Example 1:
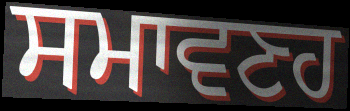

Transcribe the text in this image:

ਸਮਾਵਣਹ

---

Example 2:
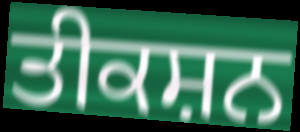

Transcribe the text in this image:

ਤੀਕਸ਼ਨ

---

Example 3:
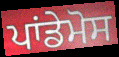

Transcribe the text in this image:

ਪਾਂਡੇਮੋਸ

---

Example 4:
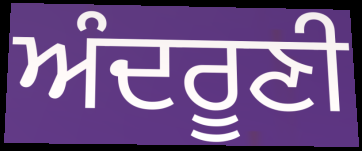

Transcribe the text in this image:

ਅੰਦਰੂਣੀ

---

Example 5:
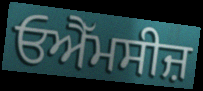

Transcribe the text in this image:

ਓਐੱਮਸੀਜ਼